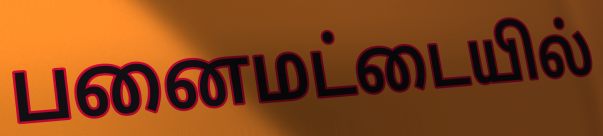
பனைமட்டையில்